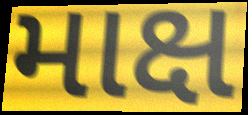
માક્ષ